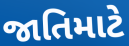
જાતિમાટે